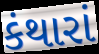
કંથારાં